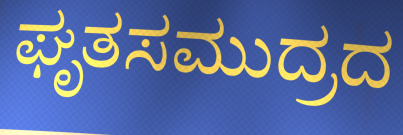
ಘೃತಸಮುದ್ರದ